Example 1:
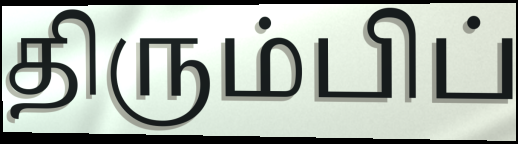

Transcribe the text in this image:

திரும்பிப்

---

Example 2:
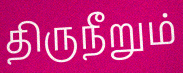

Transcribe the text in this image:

திருநீறும்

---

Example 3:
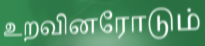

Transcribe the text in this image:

உறவினரோடும்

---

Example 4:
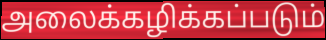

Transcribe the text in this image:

அலைக்கழிக்கப்படும்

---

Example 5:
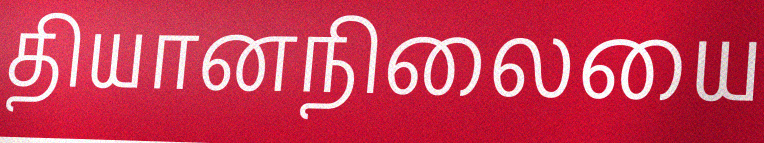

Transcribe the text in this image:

தியானநிலையை